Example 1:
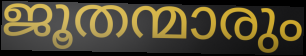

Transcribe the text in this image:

ജൂതന്മാരും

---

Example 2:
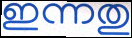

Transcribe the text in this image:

ഇന്നതു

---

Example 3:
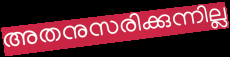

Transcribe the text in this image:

അതനുസരിക്കുന്നില്ല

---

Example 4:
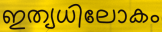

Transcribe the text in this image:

ഇത്യധിലോകം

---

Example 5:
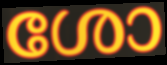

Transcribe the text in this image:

ശോ